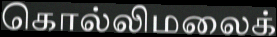
கொல்லிமலைக்